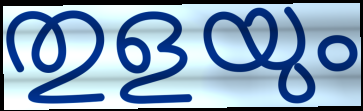
തുളയും